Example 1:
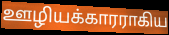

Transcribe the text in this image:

ஊழியக்காரராகிய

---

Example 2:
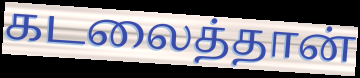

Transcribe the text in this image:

கடலைத்தான்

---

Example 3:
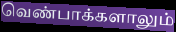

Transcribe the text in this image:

வெண்பாக்களாலும்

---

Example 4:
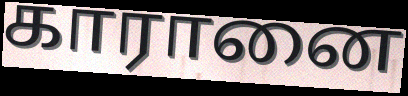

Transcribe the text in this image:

காரானை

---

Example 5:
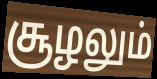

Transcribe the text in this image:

சூழலும்